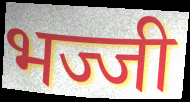
भज्जी